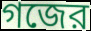
গজের